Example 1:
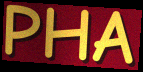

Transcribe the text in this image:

PHA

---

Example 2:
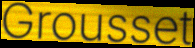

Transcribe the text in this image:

Grousset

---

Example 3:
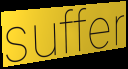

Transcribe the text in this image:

suffer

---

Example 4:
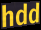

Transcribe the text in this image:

hdd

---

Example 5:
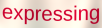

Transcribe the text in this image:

expressing